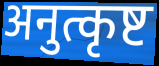
अनुत्कृष्ट